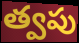
త్వపు